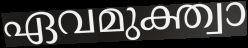
ഏവമുക്ത്വാ